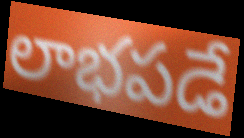
లాభపడే